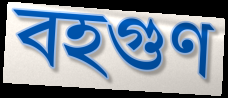
বহগুণ